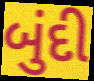
બુંદી